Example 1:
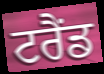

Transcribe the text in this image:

ਟਰੈਂਡ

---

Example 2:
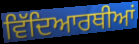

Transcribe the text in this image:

ਵਿੱਦਿਆਰਥੀਆਂ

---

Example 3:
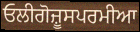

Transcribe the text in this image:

ਓਲੀਗੋਜ਼ੂਸਪਰਮੀਆ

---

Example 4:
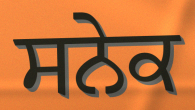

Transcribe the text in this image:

ਸਨੇਕ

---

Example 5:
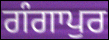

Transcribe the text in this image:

ਗੰਗਾਪੁਰ